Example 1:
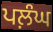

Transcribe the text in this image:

ਪਲ਼ੰਘ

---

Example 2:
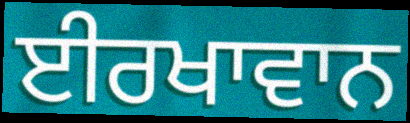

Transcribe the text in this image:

ਈਰਖਾਵਾਨ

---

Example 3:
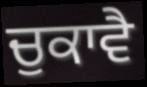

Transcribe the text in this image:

ਚੁਕਾਵੈ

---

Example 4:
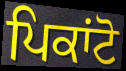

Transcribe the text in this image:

ਪਿਕਾਂਟੋ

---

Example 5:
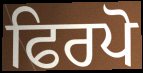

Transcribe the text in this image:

ਫਿਰਪੋ